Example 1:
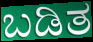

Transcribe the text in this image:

ಬಡಿತ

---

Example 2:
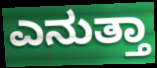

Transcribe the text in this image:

ಎನುತ್ತಾ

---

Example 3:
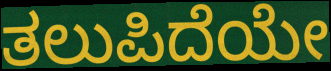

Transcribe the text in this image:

ತಲುಪಿದೆಯೇ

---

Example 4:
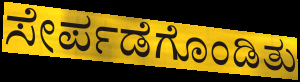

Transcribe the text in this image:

ಸೇರ್ಪಡೆಗೊಂಡಿತು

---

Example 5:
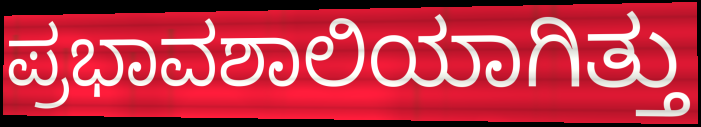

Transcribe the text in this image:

ಪ್ರಭಾವಶಾಲಿಯಾಗಿತ್ತು